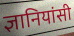
ज्ञानियांसी